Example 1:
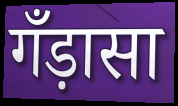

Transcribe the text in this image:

गँड़ासा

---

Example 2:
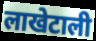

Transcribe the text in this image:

लाखेटाली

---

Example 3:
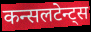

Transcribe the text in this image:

कन्सलटेन्ट्स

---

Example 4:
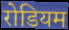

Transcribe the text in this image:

रोडियम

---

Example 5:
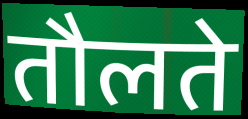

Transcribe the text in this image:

तौलते